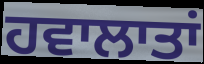
ਹਵਾਲਾਤਾਂ